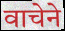
वाचेने